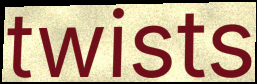
twists